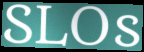
SLOs